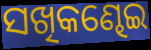
ସଖିକଣ୍ଢେଇ